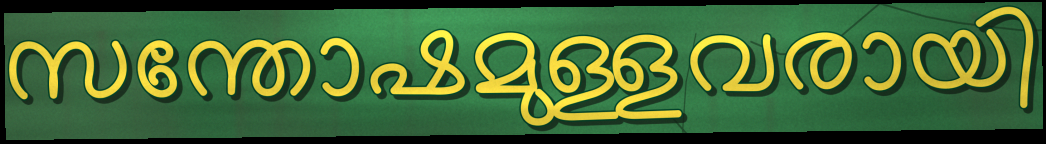
സന്തോഷമുള്ളവരായി